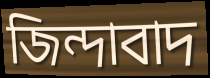
জিন্দাবাদ